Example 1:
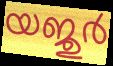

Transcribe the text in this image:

യജുർ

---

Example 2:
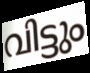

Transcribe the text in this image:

വിട്ടും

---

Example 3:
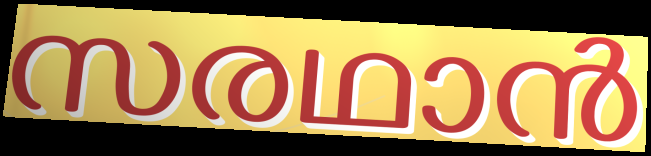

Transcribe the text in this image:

സരഥാൻ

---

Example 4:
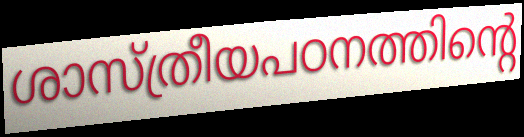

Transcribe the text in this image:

ശാസ്ത്രീയപഠനത്തിന്റെ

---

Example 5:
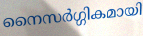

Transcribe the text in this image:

നൈസർഗ്ഗികമായി